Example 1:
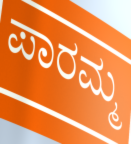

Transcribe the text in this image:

ಪಾರಮ್ಮ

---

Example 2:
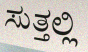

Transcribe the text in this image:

ಸುತ್ತಲ್ಲಿ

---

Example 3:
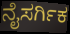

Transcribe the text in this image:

ನೈಸರ್ಗಿಕ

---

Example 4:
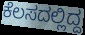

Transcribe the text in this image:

ಕೆಲಸದಲ್ಲಿದ್ದ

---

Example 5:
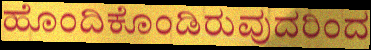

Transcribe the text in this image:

ಹೊಂದಿಕೊಂಡಿರುವುದರಿಂದ